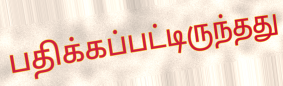
பதிக்கப்பட்டிருந்தது